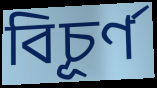
বিচূর্ণ